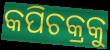
କପିଚକ୍ରକୁ